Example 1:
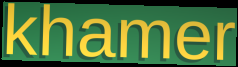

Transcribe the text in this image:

khamer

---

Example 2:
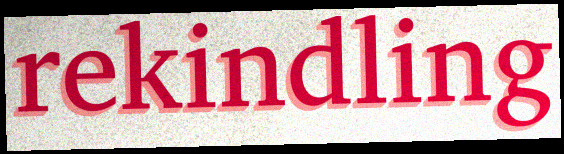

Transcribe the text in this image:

rekindling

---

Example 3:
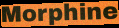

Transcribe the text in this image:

Morphine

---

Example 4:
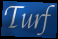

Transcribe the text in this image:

Turf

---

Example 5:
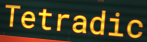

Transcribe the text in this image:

Tetradic